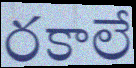
రకాలే